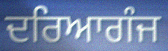
ਦਰਿਆਗੰਜ